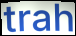
trah